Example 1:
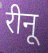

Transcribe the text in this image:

रीनू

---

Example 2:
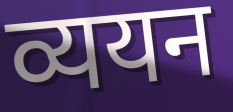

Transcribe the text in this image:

व्ययन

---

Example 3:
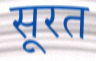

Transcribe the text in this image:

सूरत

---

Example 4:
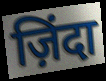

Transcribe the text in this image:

ज़िंदा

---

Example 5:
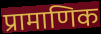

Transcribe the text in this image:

प्रामाणिक